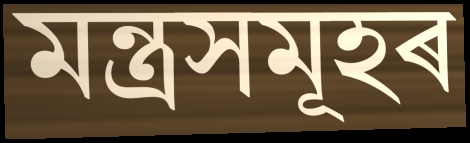
মন্ত্ৰসমূহৰ